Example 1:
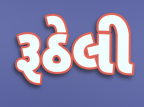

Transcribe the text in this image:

રૂઠેલી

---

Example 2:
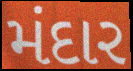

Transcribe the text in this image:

મંદાર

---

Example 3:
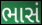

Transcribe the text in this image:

ભાસં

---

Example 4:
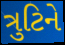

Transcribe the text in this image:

ત્રુટિને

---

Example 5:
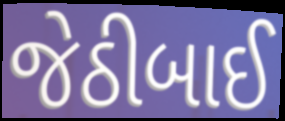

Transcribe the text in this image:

જેઠીબાઈ